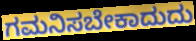
ಗಮನಿಸಬೇಕಾದುದು